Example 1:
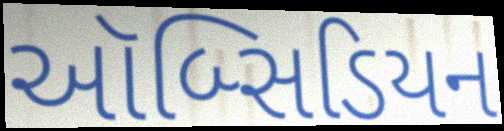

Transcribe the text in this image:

ઑબ્સિડિયન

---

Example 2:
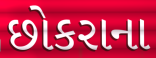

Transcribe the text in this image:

છોકરાના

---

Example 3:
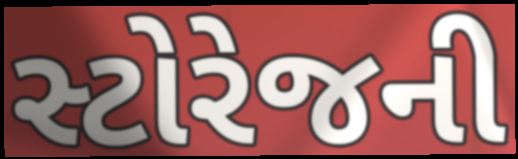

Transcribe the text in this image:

સ્ટોરેજની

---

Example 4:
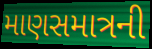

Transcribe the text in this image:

માણસમાત્રની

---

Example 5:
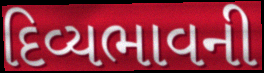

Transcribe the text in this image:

દિવ્યભાવની